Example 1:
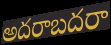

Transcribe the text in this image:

అదరాబదరా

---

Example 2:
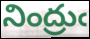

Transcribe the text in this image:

నింద్రుఁ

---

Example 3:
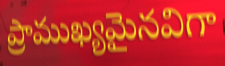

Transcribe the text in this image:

ప్రాముఖ్యమైనవిగా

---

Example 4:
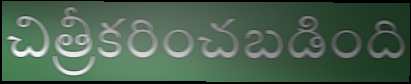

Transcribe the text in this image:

చిత్రీకరించబడింది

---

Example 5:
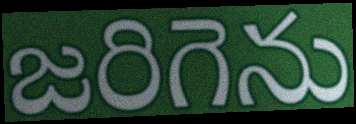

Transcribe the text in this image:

జరిగెను